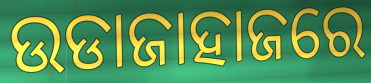
ଉଡାଜାହାଜରେ